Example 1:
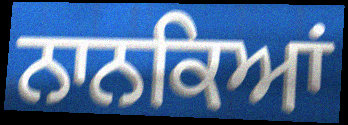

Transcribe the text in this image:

ਨਾਨਕਿਆਂ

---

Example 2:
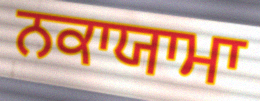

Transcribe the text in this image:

ਨਕਾਯਾਮਾ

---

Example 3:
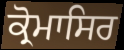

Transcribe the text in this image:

ਕ੍ਰੋਮਾਸਿਰ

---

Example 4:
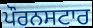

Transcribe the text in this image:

ਪੌਰਨਸਟਾਰ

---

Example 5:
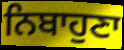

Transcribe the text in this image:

ਨਿਬਾਹੁਣਾ